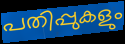
പതിപ്പുകളും